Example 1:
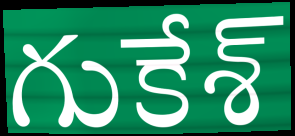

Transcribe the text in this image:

గుకేశ్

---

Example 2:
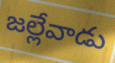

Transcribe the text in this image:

జల్లేవాడు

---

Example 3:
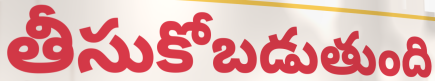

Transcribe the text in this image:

తీసుకోబడుతుంది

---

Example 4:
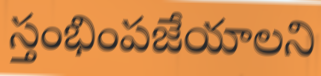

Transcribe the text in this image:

స్తంభింపజేయాలని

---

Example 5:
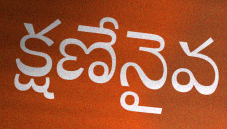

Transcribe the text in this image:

క్షణేనైవ